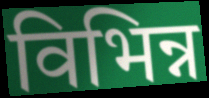
विभिन्न